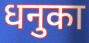
धनुका